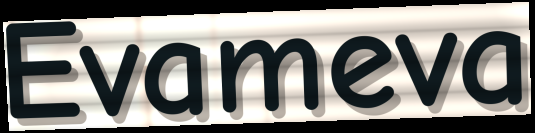
Evameva